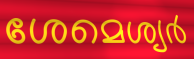
ശേമെശ്യർ